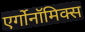
एर्गोनॉमिक्स